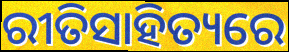
ରୀତିସାହିତ୍ୟରେ